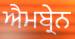
ਐਮਬ੍ਰੇਨ